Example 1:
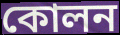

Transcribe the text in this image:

কোলন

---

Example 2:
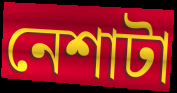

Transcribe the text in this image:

নেশাটা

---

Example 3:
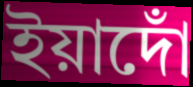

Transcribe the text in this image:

ইয়াদোঁ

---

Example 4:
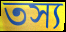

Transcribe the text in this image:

তস্য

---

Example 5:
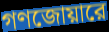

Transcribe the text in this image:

গণজোয়ারে